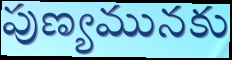
పుణ్యమునకు